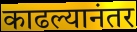
काढल्यानंतर